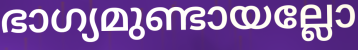
ഭാഗ്യമുണ്ടായല്ലോ